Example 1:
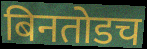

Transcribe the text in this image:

बिनतोडच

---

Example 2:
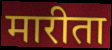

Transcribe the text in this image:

मारीता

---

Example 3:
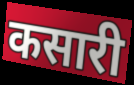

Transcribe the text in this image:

कसारी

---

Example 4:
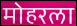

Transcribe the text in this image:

मोहरला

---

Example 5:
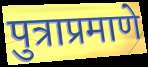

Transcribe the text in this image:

पुत्राप्रमाणे